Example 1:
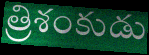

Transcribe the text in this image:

త్రిశంకుడు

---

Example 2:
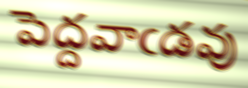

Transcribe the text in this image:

పెద్దవాఁడవు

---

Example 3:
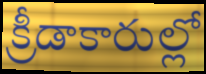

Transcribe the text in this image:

క్రీడాకారుల్లో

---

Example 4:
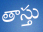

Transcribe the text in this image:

తాస్తు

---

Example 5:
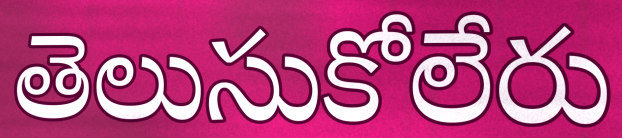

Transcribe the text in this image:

తెలుసుకోలేరు